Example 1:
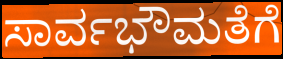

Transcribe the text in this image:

ಸಾರ್ವಭೌಮತೆಗೆ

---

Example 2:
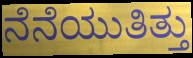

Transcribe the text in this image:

ನೆನೆಯುತಿತ್ತು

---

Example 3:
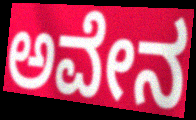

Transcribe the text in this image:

ಅವೇನ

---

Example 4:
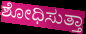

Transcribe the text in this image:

ಶೋಧಿಸುತ್ತಾ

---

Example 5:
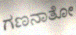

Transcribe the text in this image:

ಗಣನಾತೋ